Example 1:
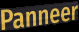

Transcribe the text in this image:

Panneer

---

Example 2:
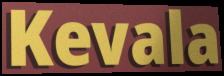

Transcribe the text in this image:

Kevala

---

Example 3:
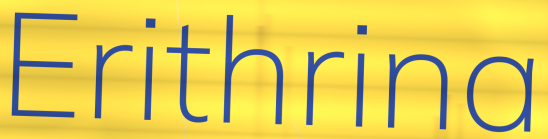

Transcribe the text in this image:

Erithrina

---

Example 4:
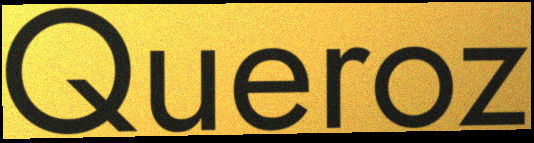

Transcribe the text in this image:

Queroz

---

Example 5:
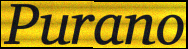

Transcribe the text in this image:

Purano